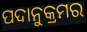
ପଦାନୁକ୍ରମର